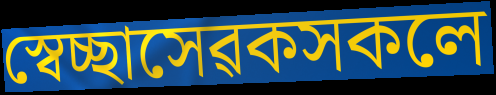
স্বেচ্ছাসেৱকসকলে